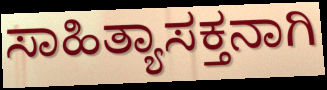
ಸಾಹಿತ್ಯಾಸಕ್ತನಾಗಿ